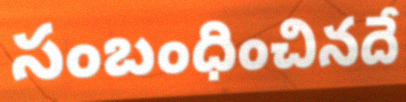
సంబంధించినదే